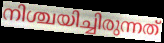
നിശ്ചയിച്ചിരുന്നത്